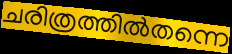
ചരിത്രത്തിൽതന്നെ